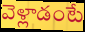
వెళ్లాడంటే